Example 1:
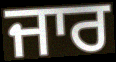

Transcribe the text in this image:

ਜਾਰ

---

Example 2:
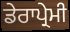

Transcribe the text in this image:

ਡੇਰਾਪ੍ਰੇਮੀ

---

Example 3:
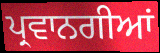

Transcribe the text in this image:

ਪ੍ਰਵਾਨਗੀਆਂ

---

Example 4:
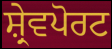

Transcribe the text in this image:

ਸ਼੍ਰੇਵਪੋਰਟ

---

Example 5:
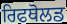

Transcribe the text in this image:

ਰਿਫਥੋਲਡ